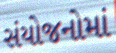
સંયોજનોમાં